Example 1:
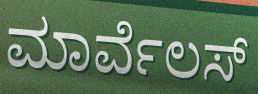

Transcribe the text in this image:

ಮಾರ್ವೆಲಸ್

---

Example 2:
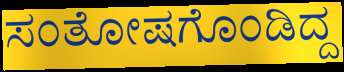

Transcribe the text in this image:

ಸಂತೋಷಗೊಂಡಿದ್ದ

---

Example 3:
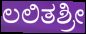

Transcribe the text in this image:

ಲಲಿತಶ್ರೀ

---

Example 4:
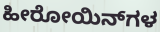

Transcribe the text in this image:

ಹೀರೋಯಿನ್‌ಗಳ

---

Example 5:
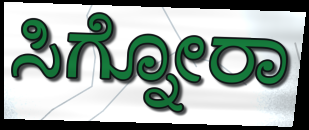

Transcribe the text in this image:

ಸಿಗ್ನೋರಾ